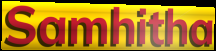
Samhitha